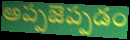
అప్పజెప్పడం